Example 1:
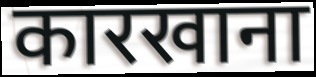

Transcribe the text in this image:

कारखाना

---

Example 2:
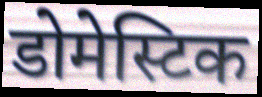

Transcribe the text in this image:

डोमेस्टिक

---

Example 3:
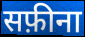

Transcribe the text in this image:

सफ़ीना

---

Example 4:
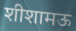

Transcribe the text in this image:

शीशामऊ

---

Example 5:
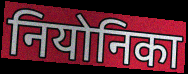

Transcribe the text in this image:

नियोनिका